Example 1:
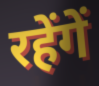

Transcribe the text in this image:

रहेंगें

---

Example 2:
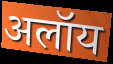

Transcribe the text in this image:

अलॉय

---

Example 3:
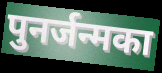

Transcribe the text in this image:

पुनर्जन्मका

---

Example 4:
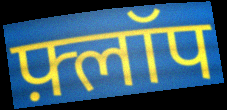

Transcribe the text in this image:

फ़्लॉप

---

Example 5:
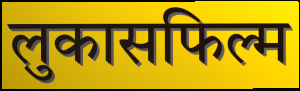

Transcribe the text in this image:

लुकासफिल्म